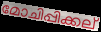
മോചിപ്പിക്കല്